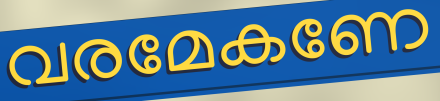
വരമേകണേ